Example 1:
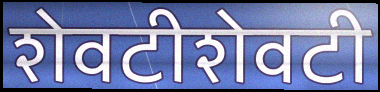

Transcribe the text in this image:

शेवटीशेवटी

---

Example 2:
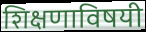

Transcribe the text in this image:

शिक्षणाविषयी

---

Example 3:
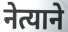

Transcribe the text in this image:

नेत्याने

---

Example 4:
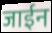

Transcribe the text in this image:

जाईन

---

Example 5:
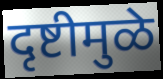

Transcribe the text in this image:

दृष्टीमुळे